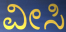
ವೀಸಿ